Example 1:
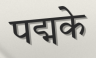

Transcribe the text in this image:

पद्मके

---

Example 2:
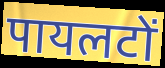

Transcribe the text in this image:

पायलटों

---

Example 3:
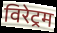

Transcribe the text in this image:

विरेट्रम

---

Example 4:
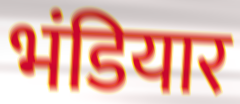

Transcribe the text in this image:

भंडियार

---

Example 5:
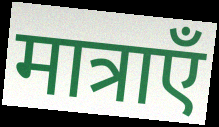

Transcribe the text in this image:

मात्राएँ